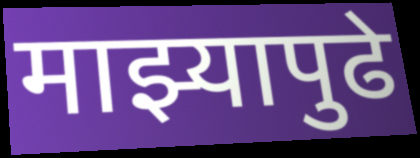
माझ्यापुढे